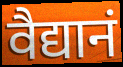
वैद्यानं